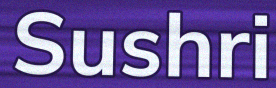
Sushri